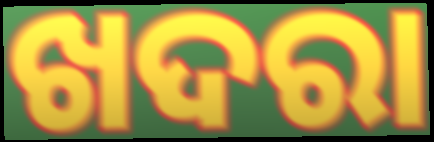
ଖଦରା